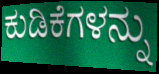
ಕುಡಿಕೆಗಳನ್ನು